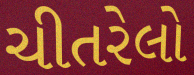
ચીતરેલો